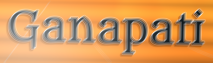
Ganapati